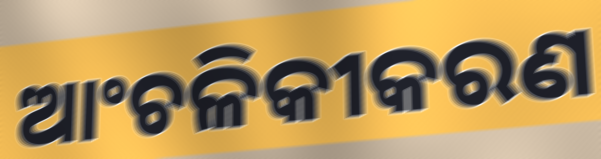
ଆଂଚଳିକୀକରଣ